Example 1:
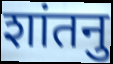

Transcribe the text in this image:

शांतनु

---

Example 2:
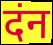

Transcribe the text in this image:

दंन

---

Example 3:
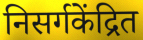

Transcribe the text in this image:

निसर्गकेंद्रित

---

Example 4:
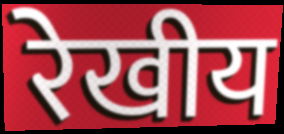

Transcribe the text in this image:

रेखीय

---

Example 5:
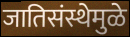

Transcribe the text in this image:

जातिसंस्थेमुळे